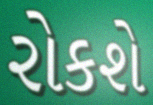
રોકશે